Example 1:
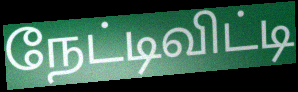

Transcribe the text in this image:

நேட்டிவிட்டி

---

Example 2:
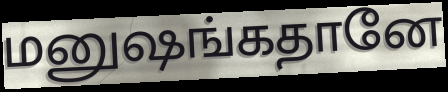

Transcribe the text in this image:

மனுஷங்கதானே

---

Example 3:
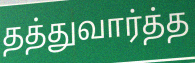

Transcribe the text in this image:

தத்துவார்த்த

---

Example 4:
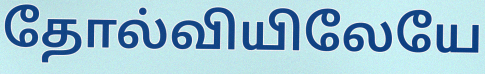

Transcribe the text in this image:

தோல்வியிலேயே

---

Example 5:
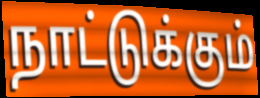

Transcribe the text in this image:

நாட்டுக்கும்